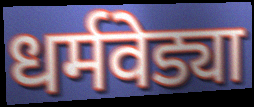
धर्मवेड्या